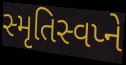
સ્મૃતિસ્વપ્ને